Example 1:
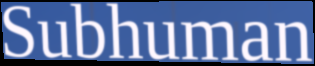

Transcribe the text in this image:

Subhuman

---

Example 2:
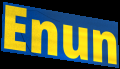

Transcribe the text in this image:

Enun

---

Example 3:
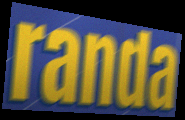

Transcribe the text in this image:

randa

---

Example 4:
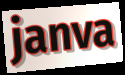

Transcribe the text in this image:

janva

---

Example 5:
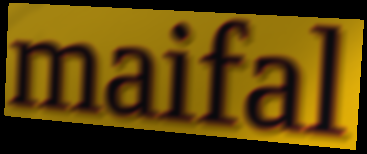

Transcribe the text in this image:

maifal